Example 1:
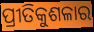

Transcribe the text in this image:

ପ୍ରୀତିକୁଶଳାର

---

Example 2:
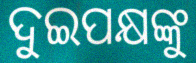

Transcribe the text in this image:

ଦୁଇପକ୍ଷଙ୍କୁ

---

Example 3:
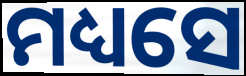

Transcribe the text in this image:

ମଧ୍ୟସେ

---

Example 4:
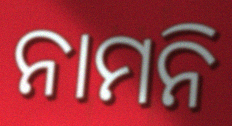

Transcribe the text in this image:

ନାମନି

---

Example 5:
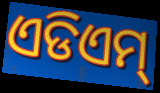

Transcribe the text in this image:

ଏଡିଏମ୍